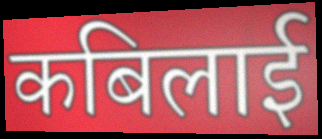
कबिलाई